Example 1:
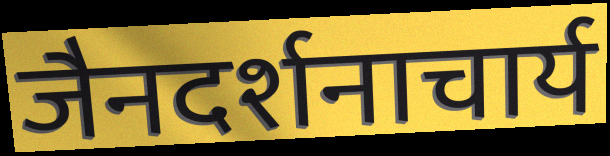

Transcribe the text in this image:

जैनदर्शनाचार्य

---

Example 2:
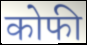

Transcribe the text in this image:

कोफी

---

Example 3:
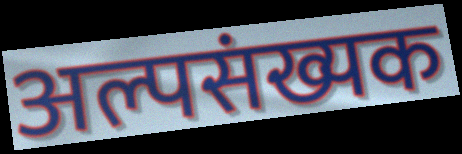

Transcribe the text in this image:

अल्‍पसंख्‍यक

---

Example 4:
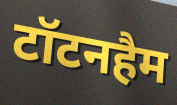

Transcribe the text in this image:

टॉटनहैम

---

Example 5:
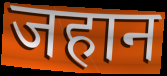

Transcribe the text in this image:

जहान